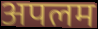
अपलम